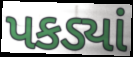
પકડ્યાં